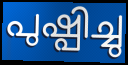
പുഷ്പിച്ചു